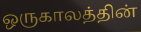
ஒருகாலத்தின்